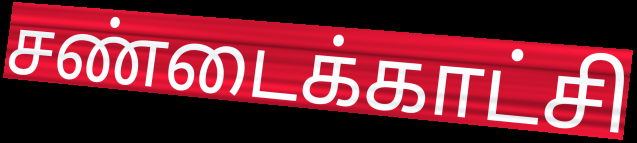
சண்டைக்காட்சி